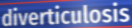
diverticulosis